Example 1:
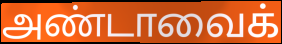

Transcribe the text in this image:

அண்டாவைக்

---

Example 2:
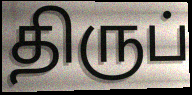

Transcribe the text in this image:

திருப்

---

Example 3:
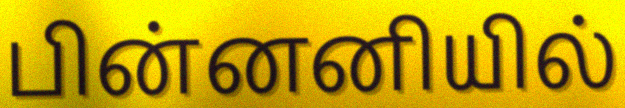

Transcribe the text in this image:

பின்னனியில்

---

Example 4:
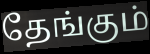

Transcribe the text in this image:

தேங்கும்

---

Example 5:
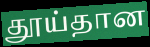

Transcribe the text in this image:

தூய்தான